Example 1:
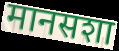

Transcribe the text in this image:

मानसशा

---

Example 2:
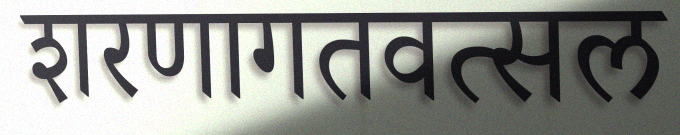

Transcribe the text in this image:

शरणागतवत्सल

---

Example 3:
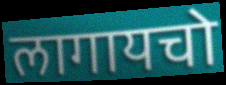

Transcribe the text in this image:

लागायचो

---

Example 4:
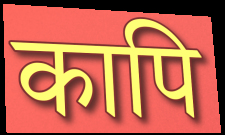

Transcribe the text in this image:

कापि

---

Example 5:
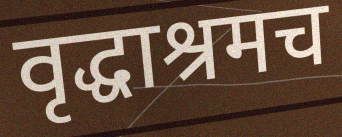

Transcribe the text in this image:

वृद्धाश्रमच